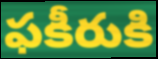
ఫకీరుకి